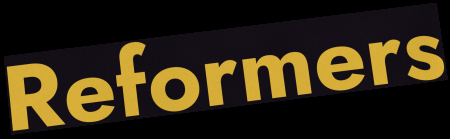
Reformers